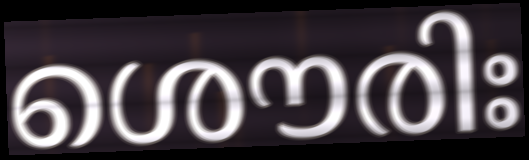
ശൌരിഃ